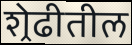
श्रेढीतील